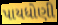
પાયધોણી